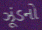
ઝૂંડનો